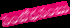
సంబోధనంబు